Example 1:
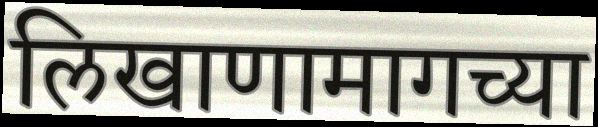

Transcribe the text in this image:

लिखाणामागच्या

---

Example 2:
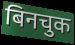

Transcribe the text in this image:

बिनचुक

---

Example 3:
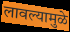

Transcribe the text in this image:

लावल्यामुळे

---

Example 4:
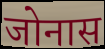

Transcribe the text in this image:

जोनास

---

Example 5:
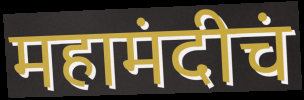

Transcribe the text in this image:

महामंदीचं